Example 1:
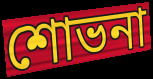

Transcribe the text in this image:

শোভনা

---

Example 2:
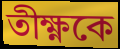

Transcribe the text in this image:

তীক্ষ্ণকে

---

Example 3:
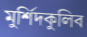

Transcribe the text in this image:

মুর্শিদকুলিব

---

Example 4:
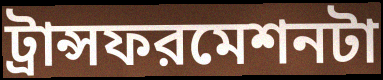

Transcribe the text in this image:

ট্রান্সফরমেশনটা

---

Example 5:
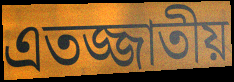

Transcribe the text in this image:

এতজ্জাতীয়